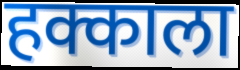
हक्काला